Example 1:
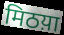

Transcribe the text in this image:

मिठय़ा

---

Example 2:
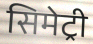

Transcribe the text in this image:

सिमेट्री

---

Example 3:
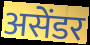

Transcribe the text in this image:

असेंडर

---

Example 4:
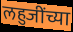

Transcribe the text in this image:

लहुजींच्या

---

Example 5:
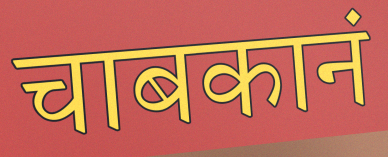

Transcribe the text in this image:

चाबकानं